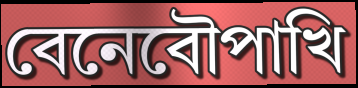
বেনেবৌপাখি